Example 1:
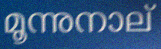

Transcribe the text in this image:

മൂന്നുനാല്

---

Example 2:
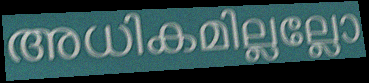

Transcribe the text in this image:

അധികമില്ലല്ലോ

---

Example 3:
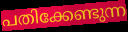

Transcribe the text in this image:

പതിക്കേണ്ടുന്ന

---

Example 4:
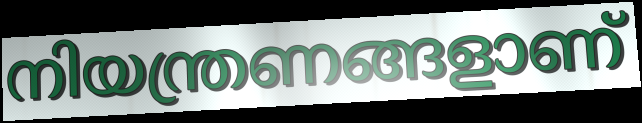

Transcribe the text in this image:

നിയന്ത്രണങ്ങളാണ്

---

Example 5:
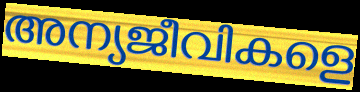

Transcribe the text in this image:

അന്യജീവികളെ